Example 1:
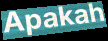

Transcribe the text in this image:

Apakah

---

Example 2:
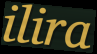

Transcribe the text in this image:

ilira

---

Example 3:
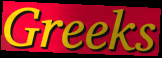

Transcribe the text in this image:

Greeks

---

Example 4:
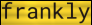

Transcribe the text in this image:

frankly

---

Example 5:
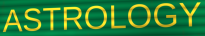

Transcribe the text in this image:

ASTROLOGY